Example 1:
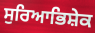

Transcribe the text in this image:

ਸੁਰਿਆਭਿਸ਼ੇਕ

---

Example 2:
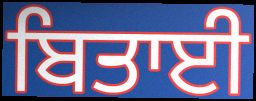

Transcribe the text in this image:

ਬਿਤਾਈ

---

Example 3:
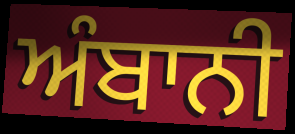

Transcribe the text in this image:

ਅੰਬਾਨੀ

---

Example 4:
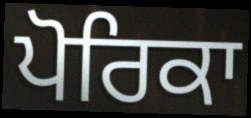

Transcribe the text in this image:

ਪੋਰਿਕਾ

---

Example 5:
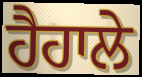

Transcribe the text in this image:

ਹੈਹਾਲੇ